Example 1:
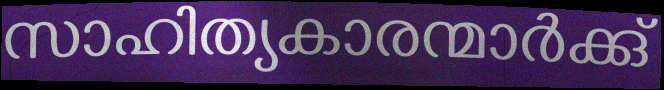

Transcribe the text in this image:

സാഹിത്യകാരന്മാർക്കു്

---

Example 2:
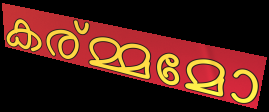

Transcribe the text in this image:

കര്മ്മമോ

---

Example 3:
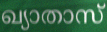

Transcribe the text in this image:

ഖ്യാതാസ്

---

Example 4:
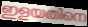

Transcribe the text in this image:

ഇളയതിനെ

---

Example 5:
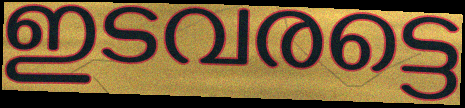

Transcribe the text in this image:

ഇടവരട്ടെ